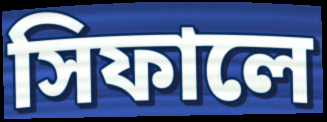
সিফালে